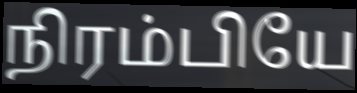
நிரம்பியே